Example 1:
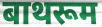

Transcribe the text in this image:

बाथरूम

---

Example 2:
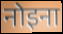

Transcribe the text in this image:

नोइना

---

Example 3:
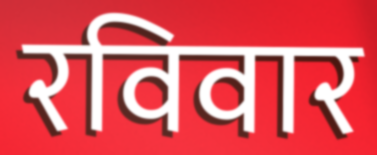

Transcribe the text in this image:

रविवार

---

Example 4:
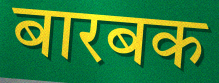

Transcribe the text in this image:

बारबक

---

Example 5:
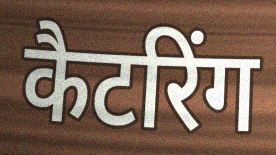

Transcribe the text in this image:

कैटरिंग